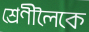
শ্ৰেণীলৈকে